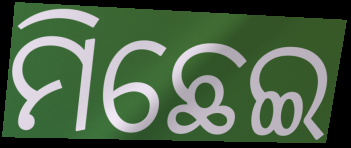
ମିଛେଇ